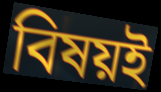
বিষয়ই